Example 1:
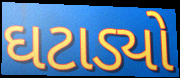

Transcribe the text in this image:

ઘટાડ્યો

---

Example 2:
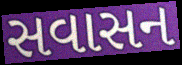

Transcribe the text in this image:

સવાસન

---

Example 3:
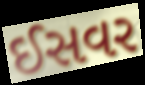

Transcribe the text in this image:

ઈસવર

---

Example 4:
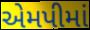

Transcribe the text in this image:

એમપીમાં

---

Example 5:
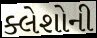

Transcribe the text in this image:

ક્લેશોની